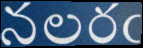
నలరఁ